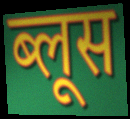
ब्लूस